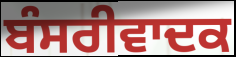
ਬੰਸਰੀਵਾਦਕ